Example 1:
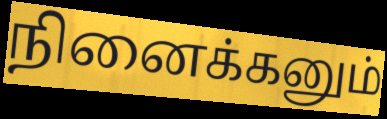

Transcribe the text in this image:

நினைக்கனும்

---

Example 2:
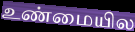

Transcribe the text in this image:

உண்மையில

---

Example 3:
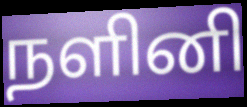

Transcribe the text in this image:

நளினி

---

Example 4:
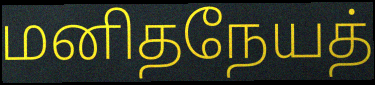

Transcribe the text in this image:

மனிதநேயத்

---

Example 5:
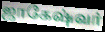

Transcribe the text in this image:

ஜாகேஷ்வர்